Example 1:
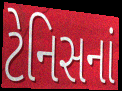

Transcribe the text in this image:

ટેનિસનાં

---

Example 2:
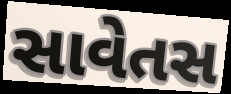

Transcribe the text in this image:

સાવેતસ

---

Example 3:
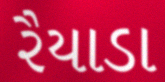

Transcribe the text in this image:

રૈયાડા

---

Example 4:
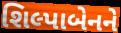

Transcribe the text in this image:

શિલ્પાબેનને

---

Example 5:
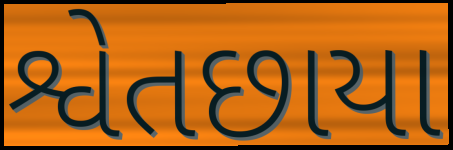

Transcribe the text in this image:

શ્વેતછાયા